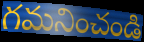
గమనించండి